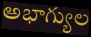
అభాగ్యుల